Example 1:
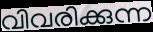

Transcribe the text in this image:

വിവരിക്കുന്ന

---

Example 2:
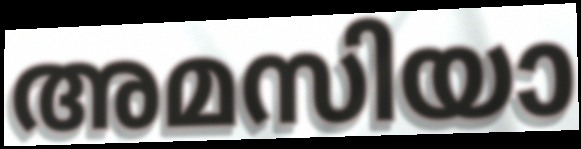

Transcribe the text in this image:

അമസിയാ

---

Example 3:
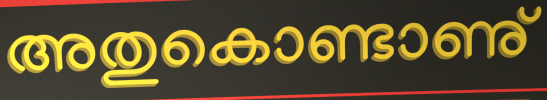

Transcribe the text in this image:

അതുകൊണ്ടാണു്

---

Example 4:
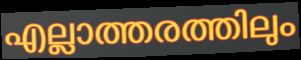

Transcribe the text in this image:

എല്ലാത്തരത്തിലും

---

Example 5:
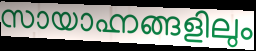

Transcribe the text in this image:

സായാഹ്നങ്ങളിലും